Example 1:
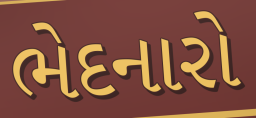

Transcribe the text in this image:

ભેદનારો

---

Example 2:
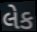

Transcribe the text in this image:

લેક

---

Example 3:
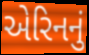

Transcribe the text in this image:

એરિનનું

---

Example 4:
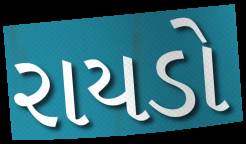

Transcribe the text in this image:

રાયડો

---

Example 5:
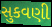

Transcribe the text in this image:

સુકવણી